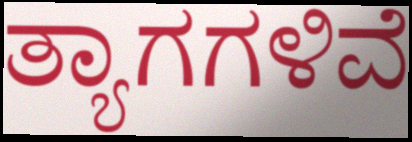
ತ್ಯಾಗಗಳಿವೆ